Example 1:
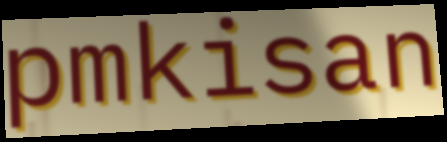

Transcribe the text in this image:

pmkisan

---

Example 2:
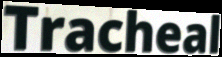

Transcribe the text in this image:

Tracheal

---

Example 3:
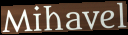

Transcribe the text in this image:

Mihavel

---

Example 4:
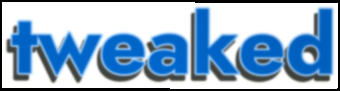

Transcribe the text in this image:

tweaked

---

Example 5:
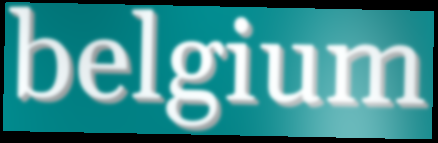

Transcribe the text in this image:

belgium